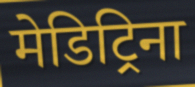
मेडिट्रिना